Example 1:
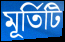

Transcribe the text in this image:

মূর্তিটি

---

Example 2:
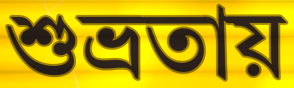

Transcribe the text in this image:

শুভ্রতায়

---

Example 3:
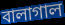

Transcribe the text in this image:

বালাগাল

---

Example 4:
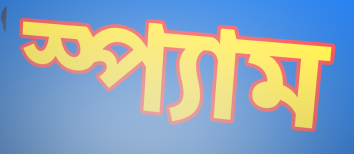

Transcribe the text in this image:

স্প্যাম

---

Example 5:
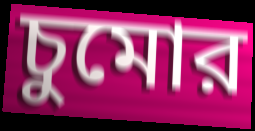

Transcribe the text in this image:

চুমোর